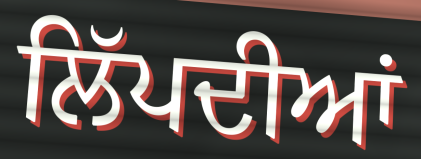
ਲਿੱਪਦੀਆਂ